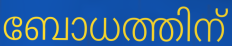
ബോധത്തിന്